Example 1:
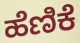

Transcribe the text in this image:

ಹೆಣಿಕೆ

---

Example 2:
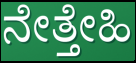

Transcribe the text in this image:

ನೇತ್ತೇಹಿ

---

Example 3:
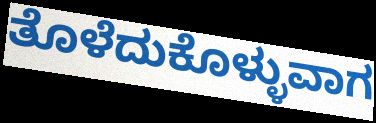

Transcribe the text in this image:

ತೊಳೆದುಕೊಳ್ಳುವಾಗ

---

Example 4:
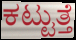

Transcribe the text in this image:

ಕಟ್ಟುತ್ತೆ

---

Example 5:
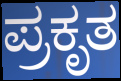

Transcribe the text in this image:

ಪ್ರಕೃತ